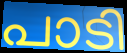
പാടി